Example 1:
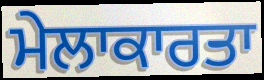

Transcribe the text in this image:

ਮੇਲਾਕਾਰਤਾ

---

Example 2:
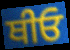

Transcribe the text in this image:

ਥੀਓ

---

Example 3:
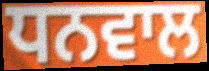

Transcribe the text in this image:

ਧਨਵਾਲ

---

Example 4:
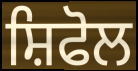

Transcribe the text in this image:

ਸ਼ਿਫੋਲ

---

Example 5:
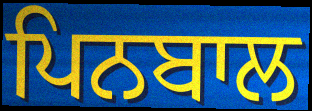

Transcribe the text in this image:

ਪਿਨਬਾਲ